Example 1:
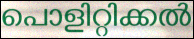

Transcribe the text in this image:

പൊളിറ്റിക്കൽ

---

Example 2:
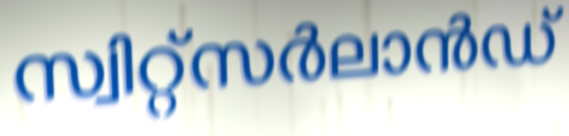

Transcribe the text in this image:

സ്വിറ്റ്സർലാൻഡ്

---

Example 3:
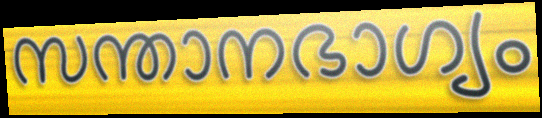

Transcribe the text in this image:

സന്താനഭാഗ്യം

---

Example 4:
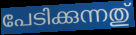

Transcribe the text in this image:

പേടിക്കുന്നതു്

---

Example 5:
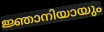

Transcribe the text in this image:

ജ്ഞാനിയായും